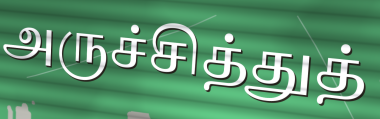
அருச்சித்துத்